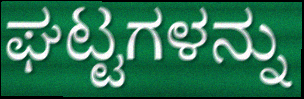
ಘಟ್ಟಗಳನ್ನು